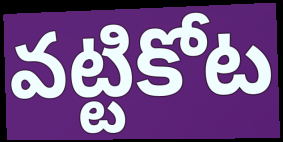
వట్టికోట